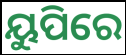
ୟୁପିରେ